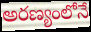
అరణ్యంలోనే